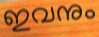
ഇവനും